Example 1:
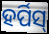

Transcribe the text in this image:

ହର୍ପିସ୍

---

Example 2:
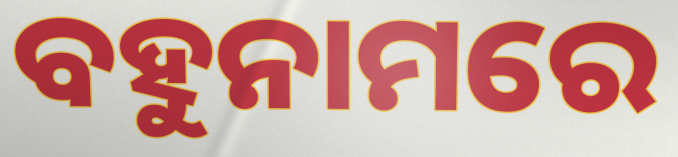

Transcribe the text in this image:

ବହୁନାମରେ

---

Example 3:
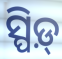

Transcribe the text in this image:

ସ୍ପିଡ଼୍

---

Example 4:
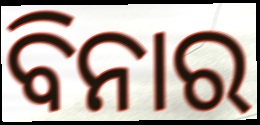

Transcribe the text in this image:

ବିନାର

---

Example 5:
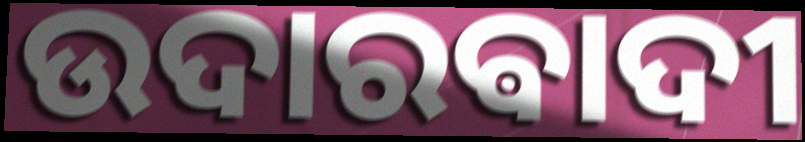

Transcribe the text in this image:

ଉଦାରଵାଦୀ